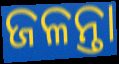
ଜଳନ୍ତା